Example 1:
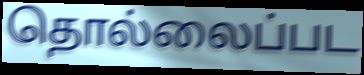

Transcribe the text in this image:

தொல்லைப்பட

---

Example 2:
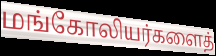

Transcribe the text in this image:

மங்கோலியர்களைத்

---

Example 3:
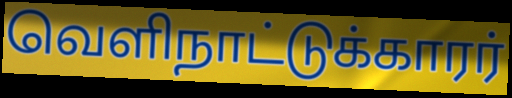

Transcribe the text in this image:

வெளிநாட்டுக்காரர்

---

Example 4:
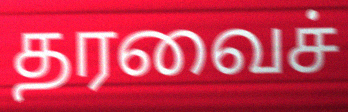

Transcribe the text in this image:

தரவைச்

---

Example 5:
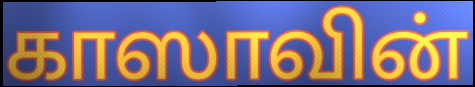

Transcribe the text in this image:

காஸாவின்